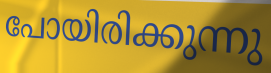
പോയിരിക്കുന്നു